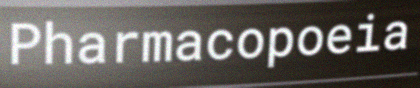
Pharmacopoeia